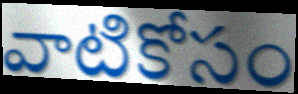
వాటికోసం